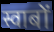
स्वाबों